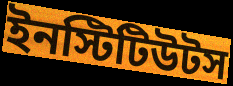
ইনস্টিটিউটস